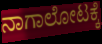
ನಾಗಾಲೋಟಕ್ಕೆ